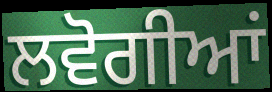
ਲਵੋਗੀਆਂ